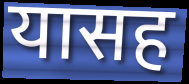
यासह